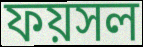
ফয়সল